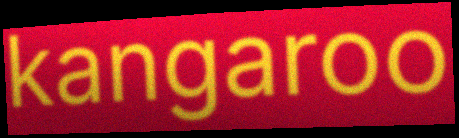
kangaroo